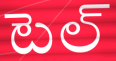
టెల్